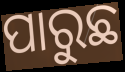
ପାରୁଛ